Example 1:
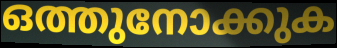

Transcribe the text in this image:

ഒത്തുനോക്കുക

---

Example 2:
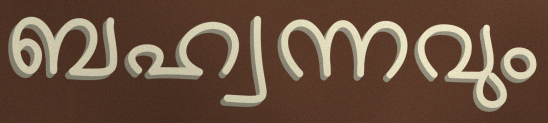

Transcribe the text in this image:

ബഹ്വന്നവും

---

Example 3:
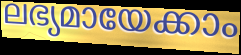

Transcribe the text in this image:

ലഭ്യമായേക്കാം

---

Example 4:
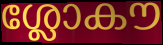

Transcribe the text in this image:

ശ്ലോകൗ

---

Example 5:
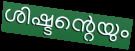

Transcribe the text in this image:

ശിഷ്ടന്റെയും